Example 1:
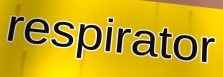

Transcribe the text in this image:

respirator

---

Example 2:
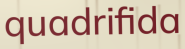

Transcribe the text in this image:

quadrifida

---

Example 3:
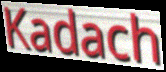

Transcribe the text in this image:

Kadach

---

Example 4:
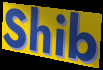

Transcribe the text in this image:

Shib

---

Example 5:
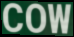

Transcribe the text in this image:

COW